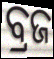
ବ୍ରଜ